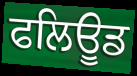
ਫਲਿਊਡ